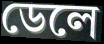
ডেলে